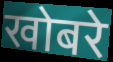
खोबरे